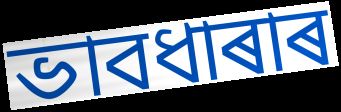
ভাবধাৰাৰ